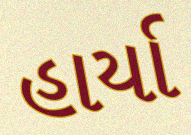
હાર્યા